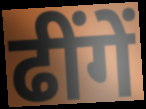
ढींगें